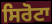
ਸਿਰੋਟਾ